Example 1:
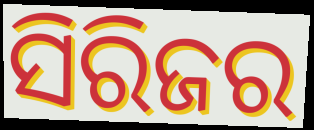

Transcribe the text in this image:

ସିରିଜର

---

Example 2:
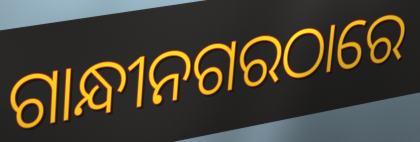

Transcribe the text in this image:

ଗାନ୍ଧୀନଗରଠାରେ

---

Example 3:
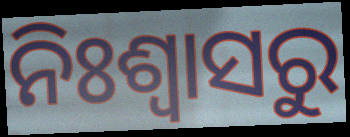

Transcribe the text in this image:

ନିଃଶ୍ଵାସରୁ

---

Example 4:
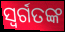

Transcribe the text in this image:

ସ୍ୱର୍ଗତଙ୍କ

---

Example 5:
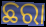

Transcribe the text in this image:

ଛରା